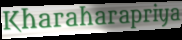
Kharaharapriya